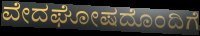
ವೇದಘೋಷದೊಂದಿಗೆ